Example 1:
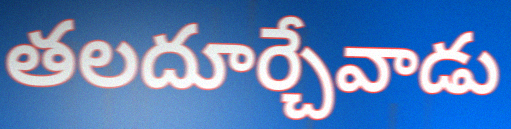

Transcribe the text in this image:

తలదూర్చేవాడు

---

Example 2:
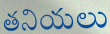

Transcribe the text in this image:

తనియలు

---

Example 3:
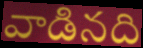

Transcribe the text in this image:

వాడినది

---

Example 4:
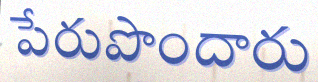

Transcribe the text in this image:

పేరుపొందారు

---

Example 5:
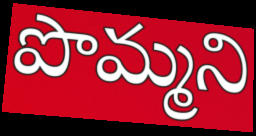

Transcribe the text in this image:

పొమ్మని